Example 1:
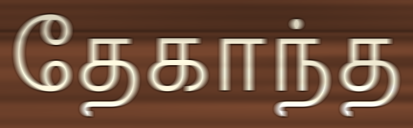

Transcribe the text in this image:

தேகாந்த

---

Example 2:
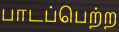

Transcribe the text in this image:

பாடப்பெற்ற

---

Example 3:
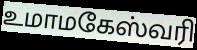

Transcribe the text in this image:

உமாமகேஸ்வரி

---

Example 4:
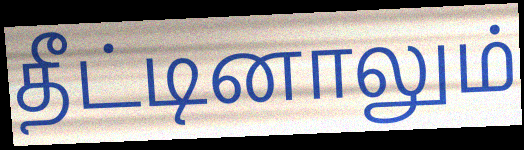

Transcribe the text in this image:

தீட்டினாலும்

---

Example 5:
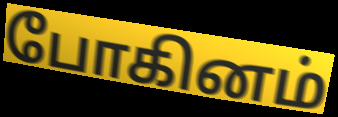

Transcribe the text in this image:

போகினம்